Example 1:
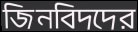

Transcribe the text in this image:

জিনবিদদের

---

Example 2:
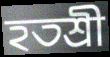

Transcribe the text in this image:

হতশ্রী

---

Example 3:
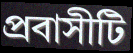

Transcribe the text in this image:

প্রবাসীটি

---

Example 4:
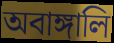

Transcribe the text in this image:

অবাঙ্গালি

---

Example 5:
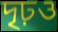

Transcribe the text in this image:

দৃঢ়ও